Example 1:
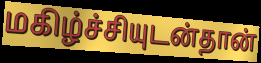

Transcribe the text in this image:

மகிழ்ச்சியுடன்தான்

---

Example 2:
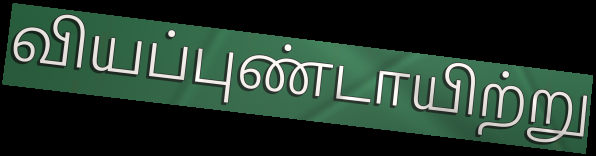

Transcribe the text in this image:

வியப்புண்டாயிற்று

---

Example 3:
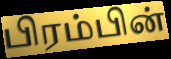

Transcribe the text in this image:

பிரம்பின்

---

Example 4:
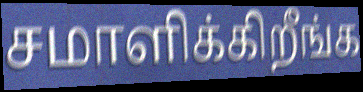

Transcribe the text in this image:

சமாளிக்கிறீங்க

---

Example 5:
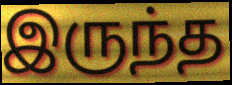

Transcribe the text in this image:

இருந்த